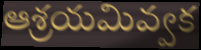
ఆశ్రయమివ్వక